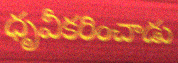
ధృవీకరించాడు